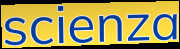
scienza